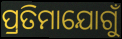
ପ୍ରତିମାଯୋଗୁଁ